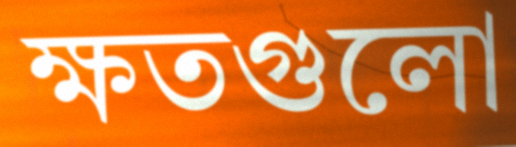
ক্ষতগুলো